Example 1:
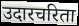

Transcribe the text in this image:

उदारचरिता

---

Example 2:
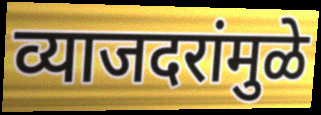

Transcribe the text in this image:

व्याजदरांमुळे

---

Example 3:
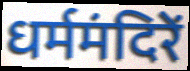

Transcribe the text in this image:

धर्ममंदिरें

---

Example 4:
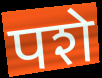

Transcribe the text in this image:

पशे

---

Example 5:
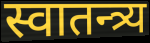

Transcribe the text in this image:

स्वातन्त्र्य